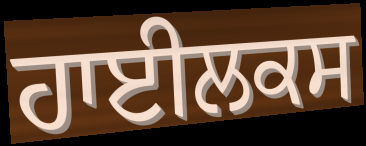
ਹਾਈਲਕਸ